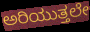
ಅರಿಯುತ್ತಲೇ